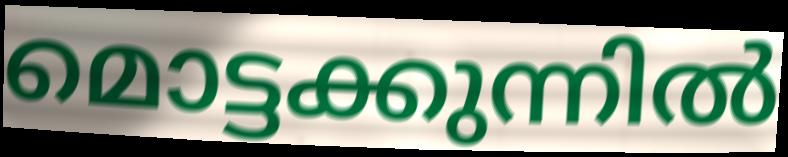
മൊട്ടക്കുന്നിൽ